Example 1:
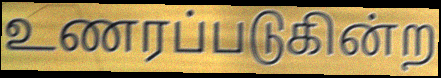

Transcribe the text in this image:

உணரப்படுகின்ற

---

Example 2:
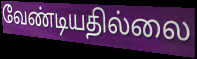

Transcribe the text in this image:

வேண்டியதில்லை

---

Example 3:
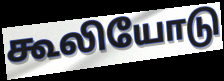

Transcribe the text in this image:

கூலியோடு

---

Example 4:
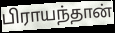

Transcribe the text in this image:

பிராயந்தான்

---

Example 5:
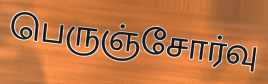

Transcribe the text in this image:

பெருஞ்சோர்வு